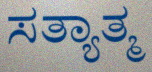
ಸತ್ಯಾತ್ಮ